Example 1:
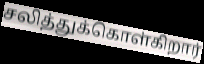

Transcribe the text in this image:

சலித்துக்கொள்கிறார்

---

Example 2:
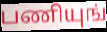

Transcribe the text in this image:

பணியுங்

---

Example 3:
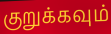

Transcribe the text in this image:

குறுக்கவும்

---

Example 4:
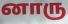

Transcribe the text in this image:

னாரு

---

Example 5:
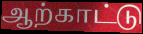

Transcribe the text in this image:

ஆற்காட்டு